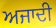
ਅਜਾਦੀ